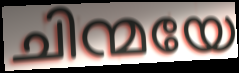
ചിന്മയേ